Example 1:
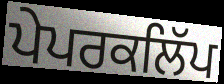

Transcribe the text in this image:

ਪੇਪਰਕਲਿੱਪ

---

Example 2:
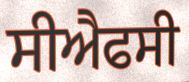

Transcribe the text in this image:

ਸੀਐਫਸੀ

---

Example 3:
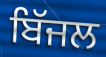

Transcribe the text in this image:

ਬਿੱਜਲ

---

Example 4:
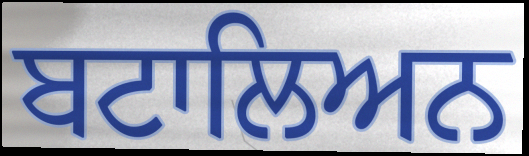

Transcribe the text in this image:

ਬਟਾਲਿਅਨ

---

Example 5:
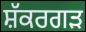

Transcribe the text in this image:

ਸ਼ੱਕਰਗੜ